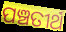
ପଞ୍ଚତୀର୍ଥ